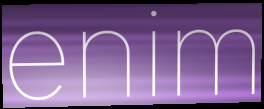
enim